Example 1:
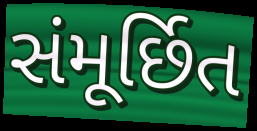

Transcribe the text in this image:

સંમૂર્છિત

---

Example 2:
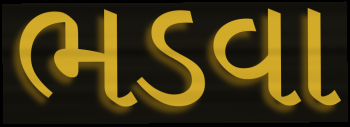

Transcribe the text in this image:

ભડવા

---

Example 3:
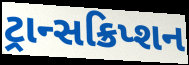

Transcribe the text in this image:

ટ્રાન્સક્રિપ્શન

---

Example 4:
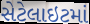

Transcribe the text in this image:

સેટેલાઇટમાં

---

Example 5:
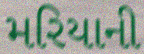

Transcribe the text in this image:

મરિયાની